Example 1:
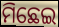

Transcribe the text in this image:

ମିଛେଇ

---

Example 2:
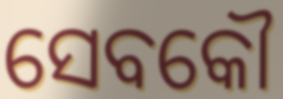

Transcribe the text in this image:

ସେବକୌ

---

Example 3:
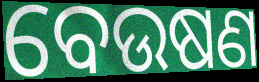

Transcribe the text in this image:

ବେଉଷଣ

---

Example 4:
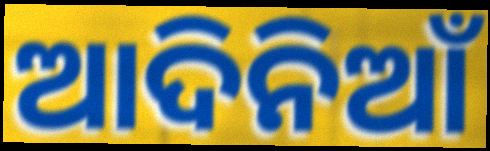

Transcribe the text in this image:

ଆଦିନିଆଁ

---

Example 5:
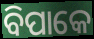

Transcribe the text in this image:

ବିପାକେ